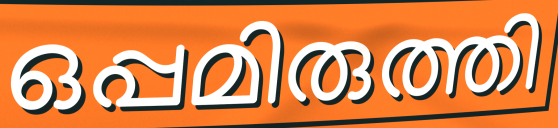
ഒപ്പമിരുത്തി